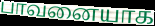
பாவனையாக